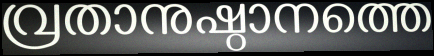
വ്രതാനുഷ്ഠാനത്തെ